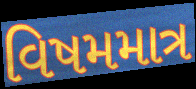
વિષમમાત્ર